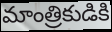
మాంత్రికుడికి